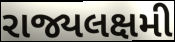
રાજ્યલક્ષમી